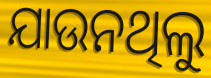
ଯାଉନଥିଲୁ